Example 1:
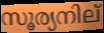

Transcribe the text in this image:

സൂര്യനില്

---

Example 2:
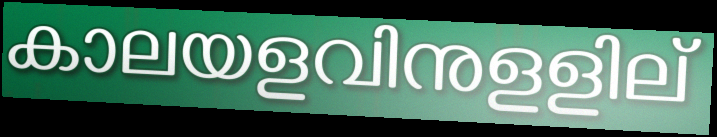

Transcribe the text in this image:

കാലയളവിനുളളില്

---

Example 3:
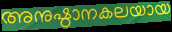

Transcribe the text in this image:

അനുഷ്ഠാനകലയായ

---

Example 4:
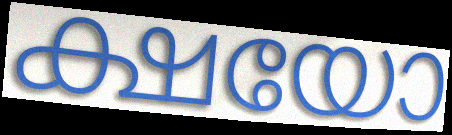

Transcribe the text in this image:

ക്ഷയോ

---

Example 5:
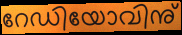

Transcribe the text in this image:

റേഡിയോവിനു്